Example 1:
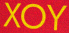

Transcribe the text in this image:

XOY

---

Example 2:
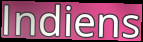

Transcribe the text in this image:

Indiens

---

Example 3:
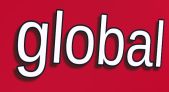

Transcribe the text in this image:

global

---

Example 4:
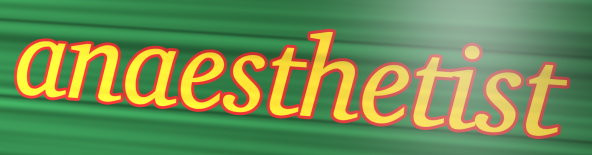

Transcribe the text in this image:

anaesthetist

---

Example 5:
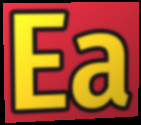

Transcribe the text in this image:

Ea